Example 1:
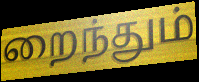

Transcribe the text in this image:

றைந்தும்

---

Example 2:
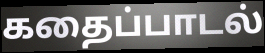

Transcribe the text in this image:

கதைப்பாடல்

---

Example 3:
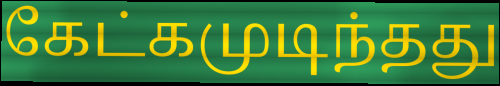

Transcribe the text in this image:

கேட்கமுடிந்தது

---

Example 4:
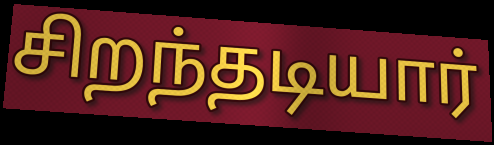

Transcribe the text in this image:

சிறந்தடியார்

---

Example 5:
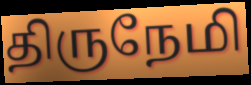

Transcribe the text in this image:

திருநேமி